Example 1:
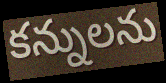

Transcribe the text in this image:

కన్నులను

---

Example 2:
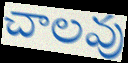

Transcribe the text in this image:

చాలవు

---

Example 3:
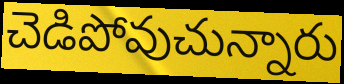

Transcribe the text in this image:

చెడిపోవుచున్నారు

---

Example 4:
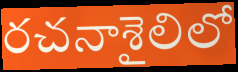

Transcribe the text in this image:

రచనాశైలిలో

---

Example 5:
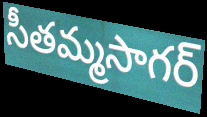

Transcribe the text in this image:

సీతమ్మసాగర్